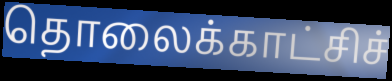
தொலைக்காட்சிச்